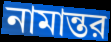
নামান্তর